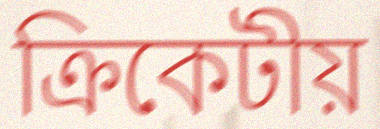
ক্রিকেটীয়